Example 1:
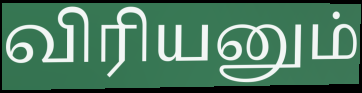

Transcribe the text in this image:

விரியனும்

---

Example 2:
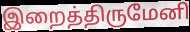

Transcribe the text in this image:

இறைத்திருமேனி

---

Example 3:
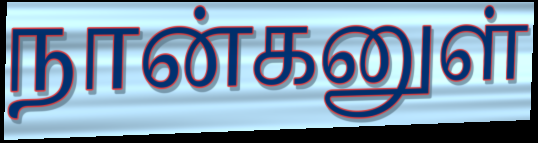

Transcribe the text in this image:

நான்கனுள்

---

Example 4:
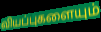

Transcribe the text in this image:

வியப்புகளையும்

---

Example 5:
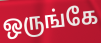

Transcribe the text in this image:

ஒருங்கே